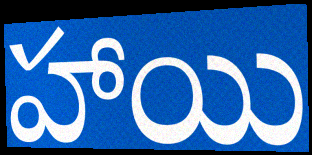
హాయి